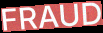
FRAUD